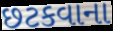
છટકવાના